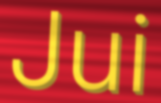
Jui